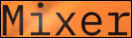
Mixer